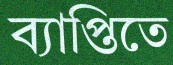
ব্যাপ্তিতে